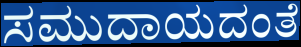
ಸಮುದಾಯದಂತೆ